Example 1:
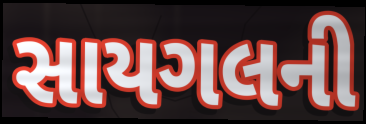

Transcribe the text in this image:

સાયગલની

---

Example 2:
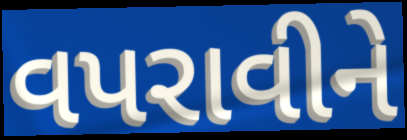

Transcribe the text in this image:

વપરાવીને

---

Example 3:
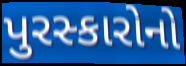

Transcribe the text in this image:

પુરસ્કારોનો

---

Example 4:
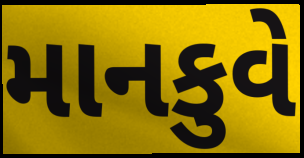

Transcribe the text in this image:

માનકુવે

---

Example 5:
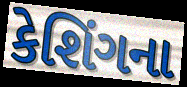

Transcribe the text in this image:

કેશિંગના